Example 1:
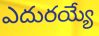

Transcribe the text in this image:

ఎదురయ్యే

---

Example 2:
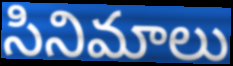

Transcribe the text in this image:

సినిమాలు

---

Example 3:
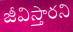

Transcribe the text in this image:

జీవిస్తారని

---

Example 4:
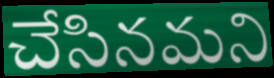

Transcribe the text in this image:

చేసినమని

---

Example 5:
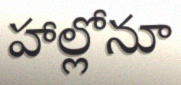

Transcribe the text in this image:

హాల్లోనూ